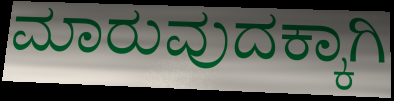
ಮಾರುವುದಕ್ಕಾಗಿ